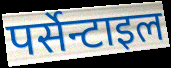
पर्सेन्टाइल